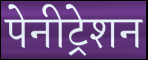
पेनीट्रेशन